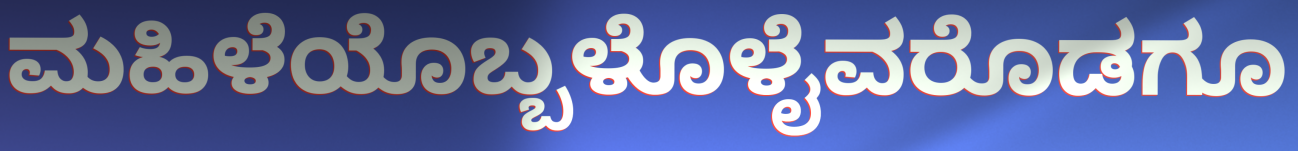
ಮಹಿಳೆಯೊಬ್ಬಳೊಳೈವರೊಡಗೂ